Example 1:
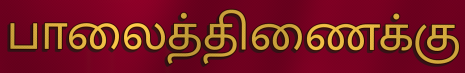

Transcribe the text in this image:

பாலைத்திணைக்கு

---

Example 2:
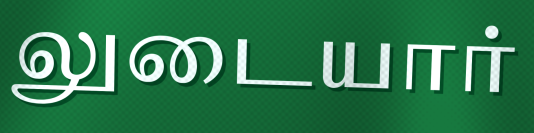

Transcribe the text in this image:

லுடையார்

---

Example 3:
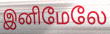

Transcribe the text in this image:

இனிமேலே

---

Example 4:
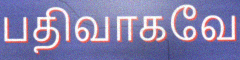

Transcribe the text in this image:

பதிவாகவே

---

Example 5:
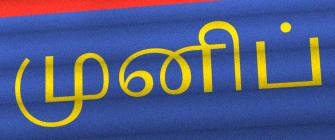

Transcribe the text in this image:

முனிப்